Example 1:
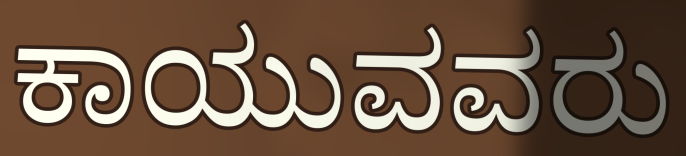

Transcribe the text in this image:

ಕಾಯುವವರು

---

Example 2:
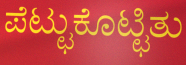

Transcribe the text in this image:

ಪೆಟ್ಟುಕೊಟ್ಟಿತು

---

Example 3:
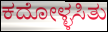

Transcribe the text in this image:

ಕದೋಳ್ಳಸಿತು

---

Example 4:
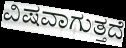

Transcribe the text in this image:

ವಿಷವಾಗುತ್ತದೆ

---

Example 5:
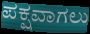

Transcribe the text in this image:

ಪಕ್ಷವಾಗಲು